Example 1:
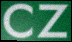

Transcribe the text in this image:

cz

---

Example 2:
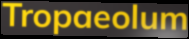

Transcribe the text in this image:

Tropaeolum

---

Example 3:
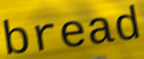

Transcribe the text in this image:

bread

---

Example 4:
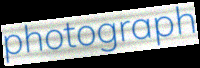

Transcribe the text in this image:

photograph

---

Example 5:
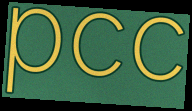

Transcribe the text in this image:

pcc